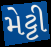
મેટ્ટી